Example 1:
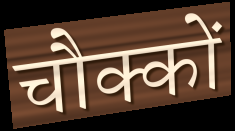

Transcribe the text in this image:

चौक्कों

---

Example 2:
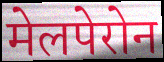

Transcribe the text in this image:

मेलपेरोन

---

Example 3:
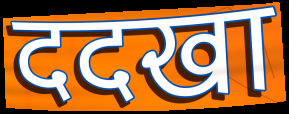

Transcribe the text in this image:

ददखा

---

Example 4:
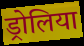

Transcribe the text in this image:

ड्रोलिया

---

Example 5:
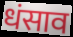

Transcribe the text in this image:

धंसाव